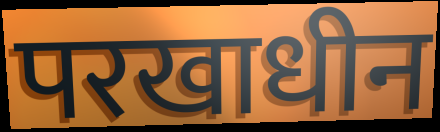
परखाधीन